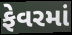
ફેવરમાં